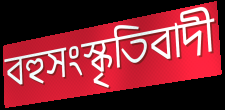
বহুসংস্কৃতিবাদী